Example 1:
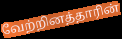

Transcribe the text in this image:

வேற்றினத்தாரின்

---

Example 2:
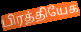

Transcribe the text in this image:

பிரத்தியேக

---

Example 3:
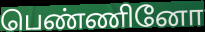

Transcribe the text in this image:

பெண்ணினோ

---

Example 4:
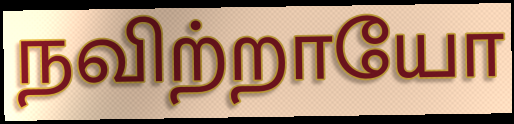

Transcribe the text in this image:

நவிற்றாயோ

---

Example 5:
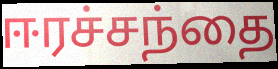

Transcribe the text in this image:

ஈரச்சந்தை